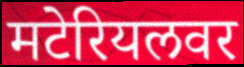
मटेरियलवर